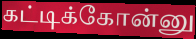
கட்டிக்கோன்னு